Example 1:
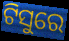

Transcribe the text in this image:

ଟିସୁରେ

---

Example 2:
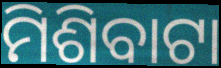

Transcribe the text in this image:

ମିଶିବାଟା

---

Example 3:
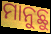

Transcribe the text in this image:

ମାନୁଛୁ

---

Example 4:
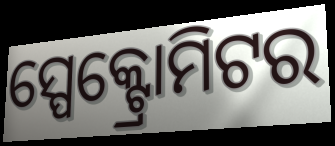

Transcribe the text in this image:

ସ୍ପେକ୍ଟ୍ରୋମିଟର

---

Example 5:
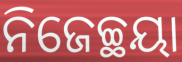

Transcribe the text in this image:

ନିଜେଚ୍ଛୟା